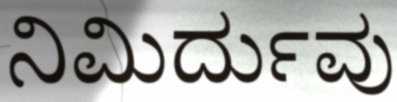
ನಿಮಿರ್ದುವು